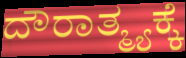
ದೌರಾತ್ಮ್ಯಕ್ಕೆ